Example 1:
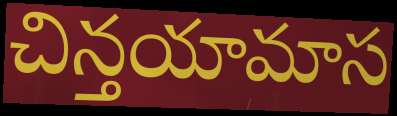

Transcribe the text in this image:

చిన్తయామాస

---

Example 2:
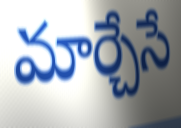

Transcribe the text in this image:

మార్చేసే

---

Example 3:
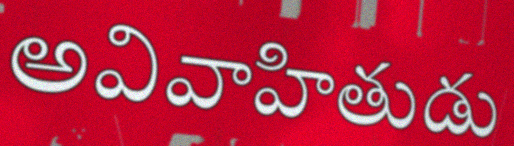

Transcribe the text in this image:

అవివాహితుడు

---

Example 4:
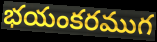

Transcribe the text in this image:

భయంకరముగ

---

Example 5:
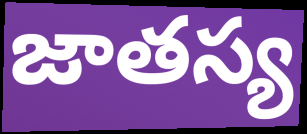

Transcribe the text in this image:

జాతస్య